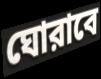
ঘোরাবে